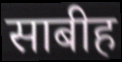
साबीह